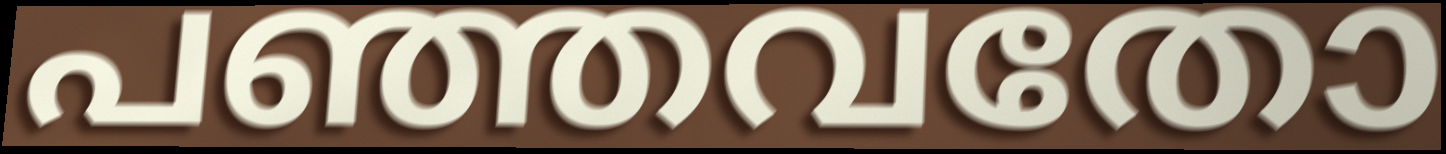
പഞ്ഞവതോ